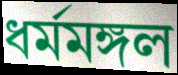
ধর্মমঙ্গল